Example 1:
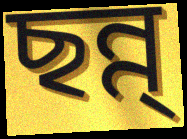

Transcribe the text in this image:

ছন্ন্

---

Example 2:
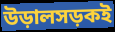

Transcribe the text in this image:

উড়ালসড়কই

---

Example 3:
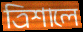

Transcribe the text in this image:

ত্রিশালে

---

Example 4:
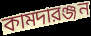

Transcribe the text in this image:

কামদারঞ্জন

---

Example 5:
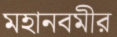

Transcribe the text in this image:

মহানবমীর